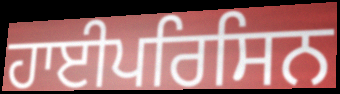
ਹਾਈਪਰਿਸਿਨ